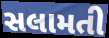
સલામતી